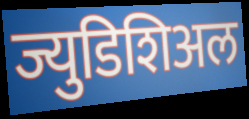
ज्युडिशिअल